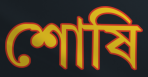
শোষি